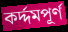
কর্দ্দমপূর্ণ